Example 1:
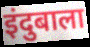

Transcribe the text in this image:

इंदुबाला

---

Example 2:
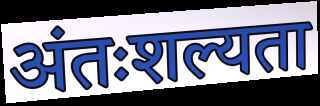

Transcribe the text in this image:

अंतःशल्यता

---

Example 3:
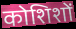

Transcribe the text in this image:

कोशिशों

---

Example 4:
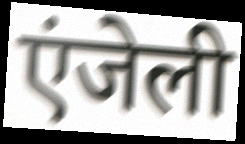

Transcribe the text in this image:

एंजेली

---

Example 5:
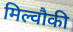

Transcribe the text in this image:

मिल्वौकी